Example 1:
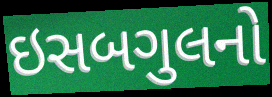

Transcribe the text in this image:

ઇસબગુલનો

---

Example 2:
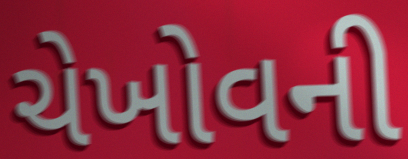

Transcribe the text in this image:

ચેખોવની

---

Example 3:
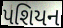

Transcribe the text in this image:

પશિયન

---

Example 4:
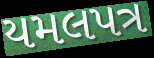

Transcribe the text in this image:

યમલપત્ર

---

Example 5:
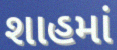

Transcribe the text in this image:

શાહમાં